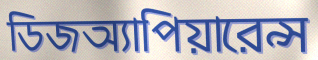
ডিজঅ্যাপিয়ারেন্স